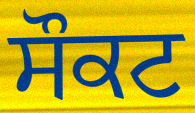
ਸੌਕਟ